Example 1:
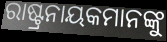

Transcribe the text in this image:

ରାଷ୍ଟ୍ରନାୟକମାନଙ୍କୁ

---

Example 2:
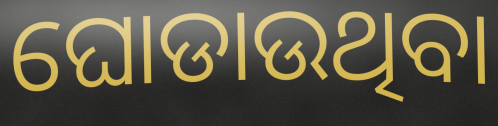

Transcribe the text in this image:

ଘୋଡାଉଥିବା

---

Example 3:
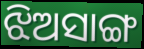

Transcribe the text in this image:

ଝିଅସାଙ୍ଗ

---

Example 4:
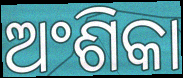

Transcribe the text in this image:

ଅଂଶିକା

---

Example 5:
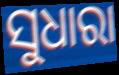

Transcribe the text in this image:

ସୁଧାରା